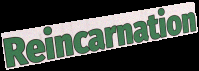
Reincarnation